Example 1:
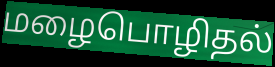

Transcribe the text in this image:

மழைபொழிதல்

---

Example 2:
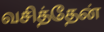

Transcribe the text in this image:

வசித்தேன்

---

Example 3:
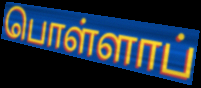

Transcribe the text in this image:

பொள்ளாப்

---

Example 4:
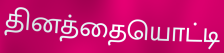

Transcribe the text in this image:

தினத்தையொட்டி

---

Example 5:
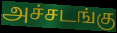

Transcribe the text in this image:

அச்சடங்கு